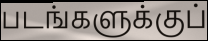
படங்களுக்குப்